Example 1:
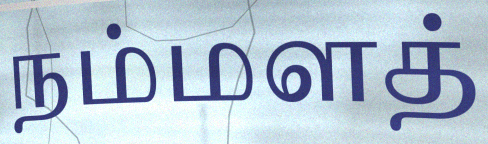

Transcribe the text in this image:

நம்மளத்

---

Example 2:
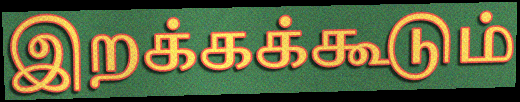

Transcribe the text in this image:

இறக்கக்கூடும்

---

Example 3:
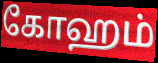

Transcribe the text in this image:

கோஹம்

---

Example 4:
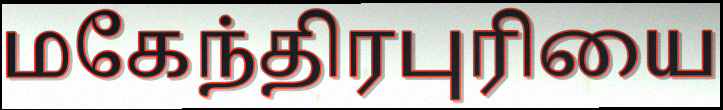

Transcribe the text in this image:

மகேந்திரபுரியை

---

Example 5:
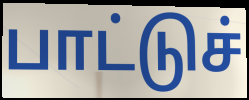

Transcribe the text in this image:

பாட்டுச்